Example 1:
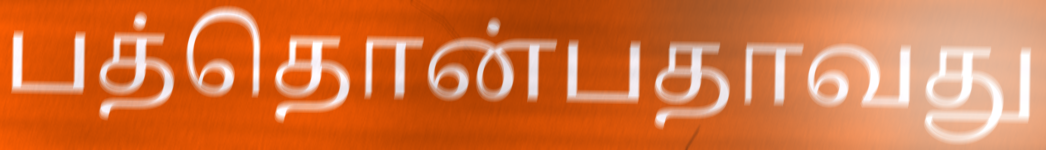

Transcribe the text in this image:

பத்தொன்பதாவது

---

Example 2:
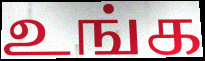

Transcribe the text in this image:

உங்க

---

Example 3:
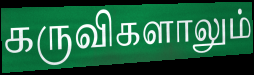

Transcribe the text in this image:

கருவிகளாலும்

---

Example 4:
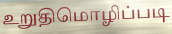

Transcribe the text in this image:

உறுதிமொழிப்படி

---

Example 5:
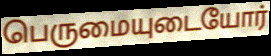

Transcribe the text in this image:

பெருமையுடையோர்